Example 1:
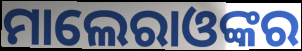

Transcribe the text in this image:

ମାଲେରାଓଙ୍କର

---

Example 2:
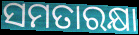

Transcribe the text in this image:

ସମତାରକ୍ଷା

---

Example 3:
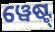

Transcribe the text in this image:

ୱେଷ୍ଟ୍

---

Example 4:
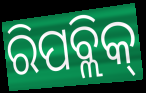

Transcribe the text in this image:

ରିପବ୍ଲିକ୍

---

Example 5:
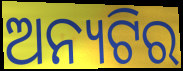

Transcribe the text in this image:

ଅନ୍ୟଟିର